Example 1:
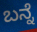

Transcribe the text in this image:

ಬನ್ನೆ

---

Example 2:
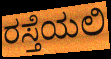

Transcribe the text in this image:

ರಸ್ತೆಯಲಿ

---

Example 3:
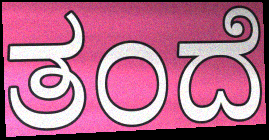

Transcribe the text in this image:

ತಂದೆ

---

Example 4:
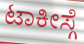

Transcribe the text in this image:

ಟಾಕೀಸ್ಗೆ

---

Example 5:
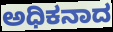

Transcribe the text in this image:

ಅಧಿಕನಾದ